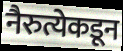
नैरुत्येकडून